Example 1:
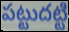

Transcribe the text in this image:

పట్టుదట్టి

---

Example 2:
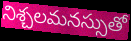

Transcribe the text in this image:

నిశ్చలమనస్సుతో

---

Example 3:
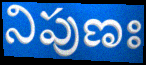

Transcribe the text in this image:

నిపుణః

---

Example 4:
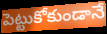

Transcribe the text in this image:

పెట్టుకోకుండానే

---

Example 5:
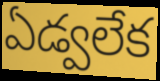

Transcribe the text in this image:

ఏడ్వలేక